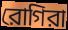
রোগিরা